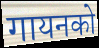
गायनको